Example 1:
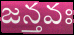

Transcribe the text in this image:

జన్తవః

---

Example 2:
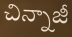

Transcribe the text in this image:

చిన్నాజీ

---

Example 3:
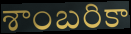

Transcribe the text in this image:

శాంబరికా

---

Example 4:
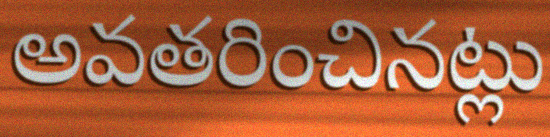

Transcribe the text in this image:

అవతరించినట్లు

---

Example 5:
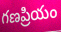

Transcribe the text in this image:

గణప్రియం